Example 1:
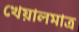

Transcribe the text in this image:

খেয়ালমাত্র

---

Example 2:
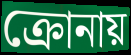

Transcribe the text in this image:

ক্রোনায়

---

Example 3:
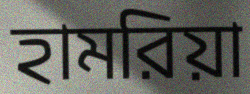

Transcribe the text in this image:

হামরিয়া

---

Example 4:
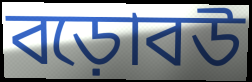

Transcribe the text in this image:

বড়োবউ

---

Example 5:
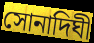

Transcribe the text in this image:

সোনাদিঘী